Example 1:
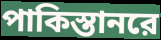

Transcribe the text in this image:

পাকিস্তানরে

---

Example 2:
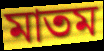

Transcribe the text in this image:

মাতম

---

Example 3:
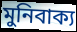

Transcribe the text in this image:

মুনিবাক্য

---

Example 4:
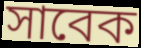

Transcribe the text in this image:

সাবেক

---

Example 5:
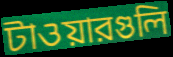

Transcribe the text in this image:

টাওয়ারগুলি